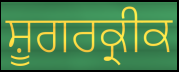
ਸ਼ੂਗਰਕ੍ਰੀਕ